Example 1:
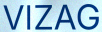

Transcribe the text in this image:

VIZAG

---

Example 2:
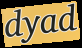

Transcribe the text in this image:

dyad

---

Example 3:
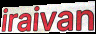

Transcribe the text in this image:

iraivan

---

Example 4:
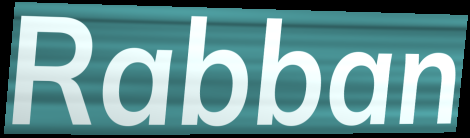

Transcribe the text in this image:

Rabban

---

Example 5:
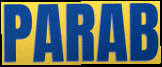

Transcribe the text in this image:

PARAB